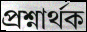
প্ৰশ্নাৰ্থক